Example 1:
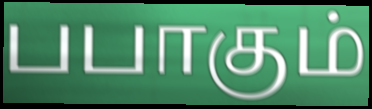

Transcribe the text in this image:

பபாகும்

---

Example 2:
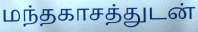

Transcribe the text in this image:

மந்தகாசத்துடன்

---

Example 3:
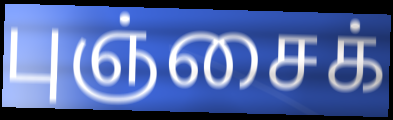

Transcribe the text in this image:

புஞ்சைக்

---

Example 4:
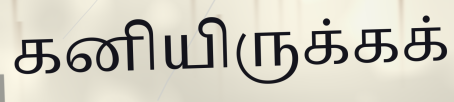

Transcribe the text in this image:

கனியிருக்கக்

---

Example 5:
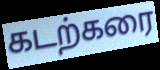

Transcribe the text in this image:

கடற்கரை